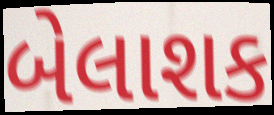
બેલાશક